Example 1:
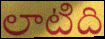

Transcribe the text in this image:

లాటిది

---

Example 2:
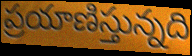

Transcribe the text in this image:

ప్రయాణిస్తున్నది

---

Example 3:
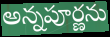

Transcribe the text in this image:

అన్నపూర్ణను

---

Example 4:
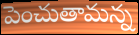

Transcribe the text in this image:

పెంచుతామన్న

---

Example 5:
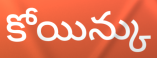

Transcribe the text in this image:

కోయిన్కు